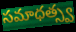
సమాధత్స్వ